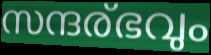
സന്ദര്ഭവും